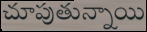
చూపుతున్నాయి